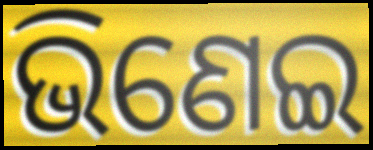
ଭିଣେଇ